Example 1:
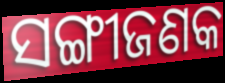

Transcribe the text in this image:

ସଙ୍ଗୀଜଣକ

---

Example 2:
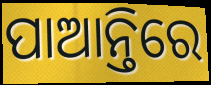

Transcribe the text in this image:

ପାଆନ୍ତିରେ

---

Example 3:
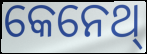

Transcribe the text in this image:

କେନେଥ୍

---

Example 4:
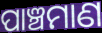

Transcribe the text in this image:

ପାଞ୍ଚମାଣ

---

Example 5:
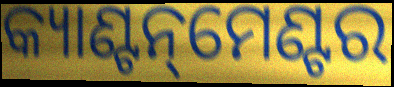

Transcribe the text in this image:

କ୍ୟାଣ୍ଟନ୍‌ମେଣ୍ଟର